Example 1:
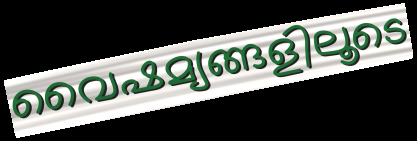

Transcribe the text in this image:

വൈഷമ്യങ്ങളിലൂടെ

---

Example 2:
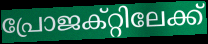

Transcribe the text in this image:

പ്രോജക്റ്റിലേക്ക്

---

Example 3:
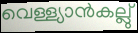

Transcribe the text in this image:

വെള്ള്യാൻകല്ലു്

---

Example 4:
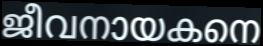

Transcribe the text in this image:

ജീവനായകനെ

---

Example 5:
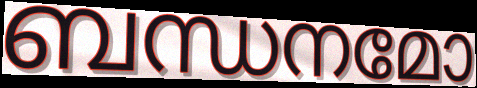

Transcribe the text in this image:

ബന്ധനമോ